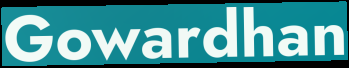
Gowardhan